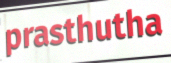
prasthutha